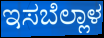
ಇಸಬೆಲ್ಲಾಳ